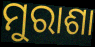
ମୁରାଶା